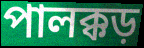
পালক্কড়